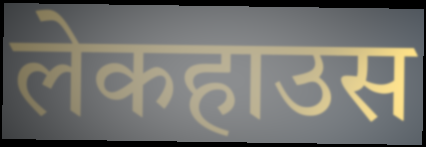
लेकहाउस